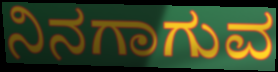
ನಿನಗಾಗುವ